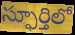
స్ఫూర్తిలో